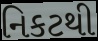
નિકટથી